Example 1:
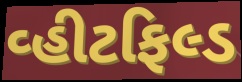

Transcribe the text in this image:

વ્હીટફિલ્ડ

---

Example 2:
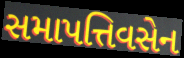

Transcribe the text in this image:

સમાપત્તિવસેન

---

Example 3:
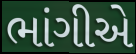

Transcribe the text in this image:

ભાંગીએ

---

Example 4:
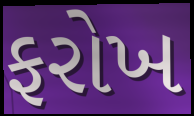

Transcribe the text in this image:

ફરોખ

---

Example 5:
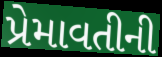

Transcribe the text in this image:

પ્રેમાવતીની